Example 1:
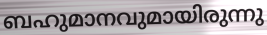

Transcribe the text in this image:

ബഹുമാനവുമായിരുന്നു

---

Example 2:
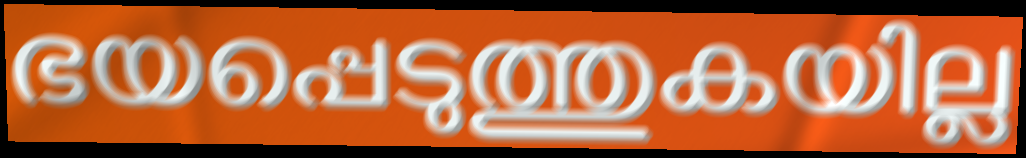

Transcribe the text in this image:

ഭയപ്പെടുത്തുകയില്ല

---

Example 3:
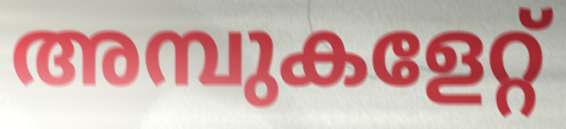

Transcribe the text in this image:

അമ്പുകളേറ്റ്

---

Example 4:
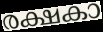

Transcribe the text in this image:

രക്ഷകാ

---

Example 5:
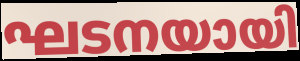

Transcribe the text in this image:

ഘടനയായി